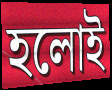
হলোই